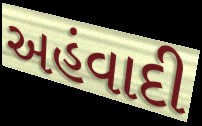
અહંવાદી